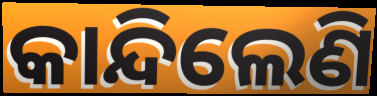
କାନ୍ଦିଲେଣି